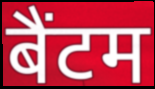
बैंटम